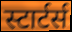
स्टार्टर्स